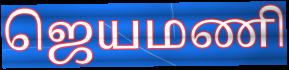
ஜெயமணி